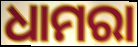
ଧାମରା